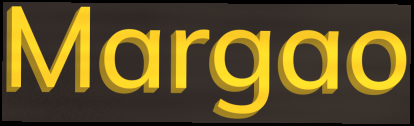
Margao